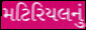
મટિરિયલનું